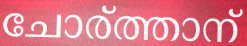
ചോര്ത്താന്